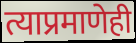
त्याप्रमाणेही